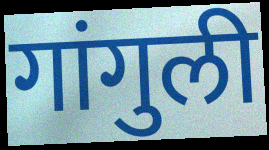
गांगुली